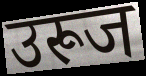
उरूज